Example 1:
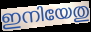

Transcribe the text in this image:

ഇനിയേതു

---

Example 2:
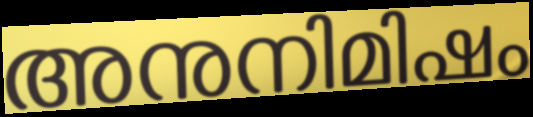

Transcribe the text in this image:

അനുനിമിഷം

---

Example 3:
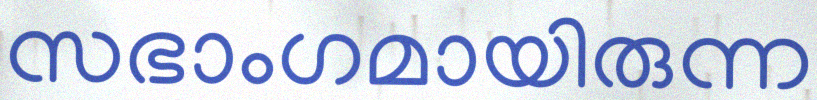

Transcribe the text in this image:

സഭാംഗമായിരുന്ന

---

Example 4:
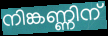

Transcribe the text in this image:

നിങ്കണ്ണിന്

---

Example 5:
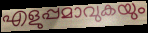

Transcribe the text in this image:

എളുപ്പമാവുകയും